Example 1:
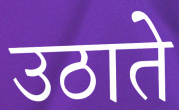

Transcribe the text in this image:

उठाते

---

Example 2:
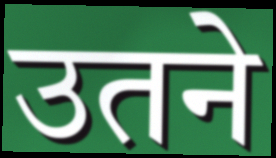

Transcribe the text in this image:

उतने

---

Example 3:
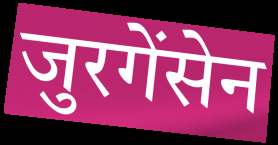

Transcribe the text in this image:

जुरगेंसेन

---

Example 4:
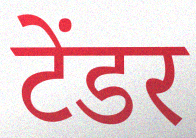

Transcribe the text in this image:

टेंडर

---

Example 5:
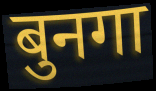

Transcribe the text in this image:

बुनगा